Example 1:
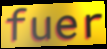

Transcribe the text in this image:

fuer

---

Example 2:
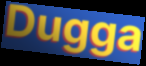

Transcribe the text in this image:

Dugga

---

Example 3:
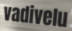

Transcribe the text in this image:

vadivelu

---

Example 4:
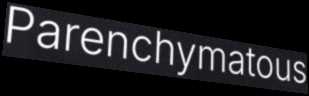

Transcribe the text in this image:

Parenchymatous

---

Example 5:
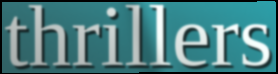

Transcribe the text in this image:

thrillers